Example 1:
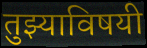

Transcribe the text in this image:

तुझ्याविषयी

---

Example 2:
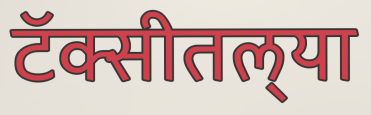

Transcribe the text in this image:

टॅक्सीतल्या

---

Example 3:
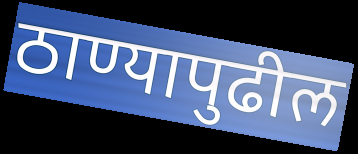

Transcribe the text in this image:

ठाण्यापुढील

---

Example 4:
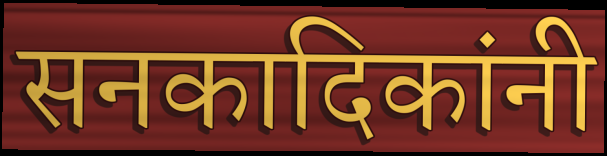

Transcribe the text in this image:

सनकादिकांनी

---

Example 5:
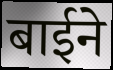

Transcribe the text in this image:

बाईने